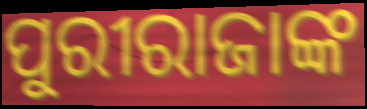
ପୁରୀରାଜାଙ୍କ